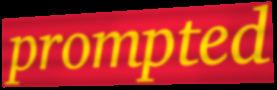
prompted